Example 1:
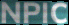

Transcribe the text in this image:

NPIC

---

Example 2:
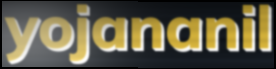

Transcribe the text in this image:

yojananil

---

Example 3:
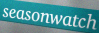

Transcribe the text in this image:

seasonwatch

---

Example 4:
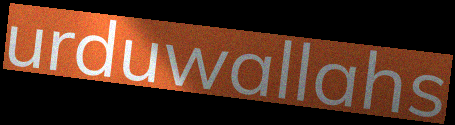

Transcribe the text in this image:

urduwallahs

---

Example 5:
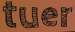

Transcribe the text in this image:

tuer